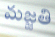
మజ్జతి